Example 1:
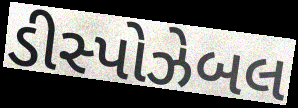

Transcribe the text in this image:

ડીસ્પોઝેબલ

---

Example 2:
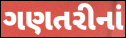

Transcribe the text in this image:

ગણતરીનાં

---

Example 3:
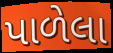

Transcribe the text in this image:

પાળેલા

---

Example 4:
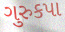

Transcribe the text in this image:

ગુરુકપા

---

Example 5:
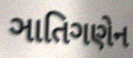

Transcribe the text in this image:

ઞાતિગણેન